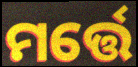
ମର୍ତ୍ତେ